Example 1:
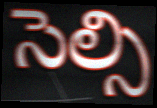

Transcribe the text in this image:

సెల్సి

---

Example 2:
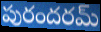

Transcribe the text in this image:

పురందరమ్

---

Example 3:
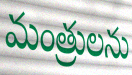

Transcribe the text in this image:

మంత్రులను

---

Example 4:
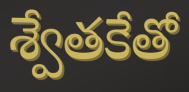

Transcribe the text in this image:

శ్వేతకేతో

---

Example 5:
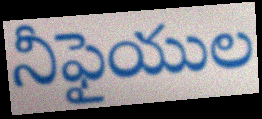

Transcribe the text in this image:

నీఫైయుల